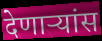
देणाऱ्यांस